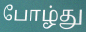
போழ்து